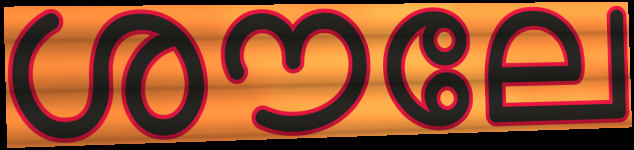
ശൗലേ